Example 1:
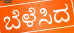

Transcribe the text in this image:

ಬೆಳೆಸಿದ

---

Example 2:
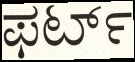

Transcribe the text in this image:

ಫರ್ಟ್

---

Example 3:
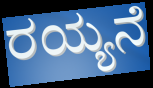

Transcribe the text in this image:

ರಯ್ಯನೆ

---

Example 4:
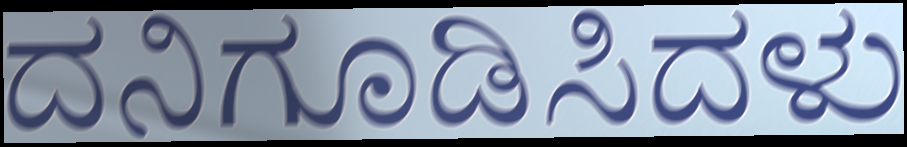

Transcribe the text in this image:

ದನಿಗೂಡಿಸಿದಳು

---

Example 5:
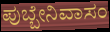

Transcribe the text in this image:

ಪುಬ್ಬೇನಿವಾಸಂ